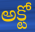
అక్టో